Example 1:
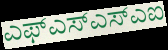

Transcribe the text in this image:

ಎಫ್ಎಸ್ಎಸ್ಎಐ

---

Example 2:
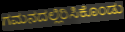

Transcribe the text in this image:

ಗಮನದಲ್ಲಿರಿಸಿಕೊಂಡು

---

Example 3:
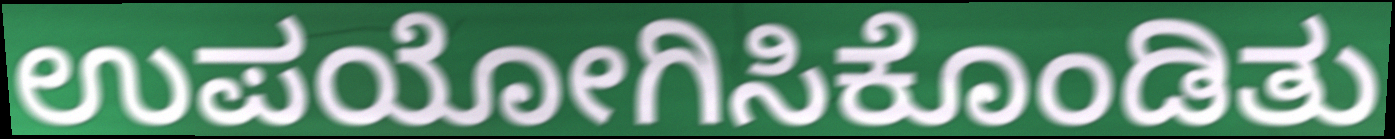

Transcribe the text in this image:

ಉಪಯೋಗಿಸಿಕೊಂಡಿತು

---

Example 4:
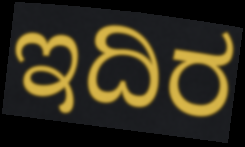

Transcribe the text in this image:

ಇದಿರ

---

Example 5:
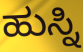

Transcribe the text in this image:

ಹುಸ್ನಿ